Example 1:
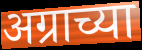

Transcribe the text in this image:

अग्राच्या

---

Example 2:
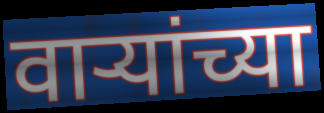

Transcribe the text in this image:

वाऱ्यांच्या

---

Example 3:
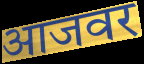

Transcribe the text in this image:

आजवर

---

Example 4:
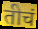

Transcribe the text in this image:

तीचं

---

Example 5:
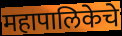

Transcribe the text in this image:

महापालिकेचे